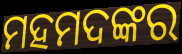
ମହମଦଙ୍କର